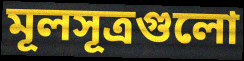
মূলসূত্রগুলো